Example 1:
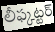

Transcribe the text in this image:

లీఫ్కట్టర్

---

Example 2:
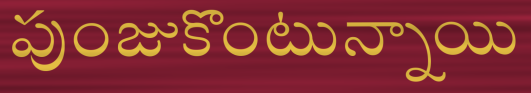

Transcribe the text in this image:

పుంజుకొంటున్నాయి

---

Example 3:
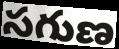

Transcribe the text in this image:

సగుణ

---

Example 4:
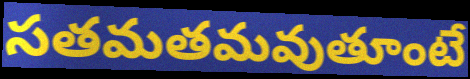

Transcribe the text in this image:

సతమతమవుతూంటే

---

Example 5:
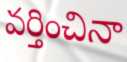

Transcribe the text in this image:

వర్తించినా